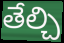
తేల్చి